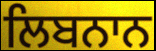
ਲਿਬਨਾਨ